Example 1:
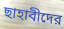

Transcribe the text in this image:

ছাহাবীদের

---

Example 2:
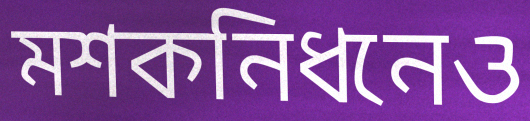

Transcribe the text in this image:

মশকনিধনেও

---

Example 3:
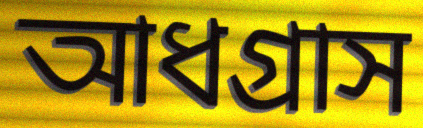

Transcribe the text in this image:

আধগ্রাস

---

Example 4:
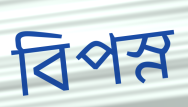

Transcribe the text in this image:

বিপস্ন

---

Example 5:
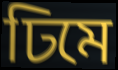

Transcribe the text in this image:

ঢিমে